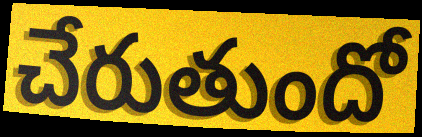
చేరుతుందో